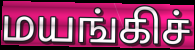
மயங்கிச்